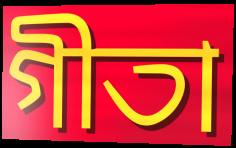
গীতা